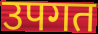
उपगत